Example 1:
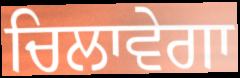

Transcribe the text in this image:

ਚਿਲਾਵੇਗਾ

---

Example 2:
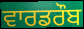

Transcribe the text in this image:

ਵਾਰਡਰੌਬ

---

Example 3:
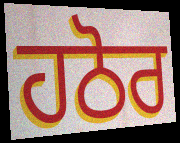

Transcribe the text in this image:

ਹਠੋਰ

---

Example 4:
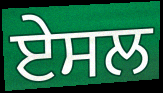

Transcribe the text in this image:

ਏਸਲ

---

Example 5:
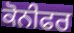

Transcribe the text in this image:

ਕੋਨੀਫਰ